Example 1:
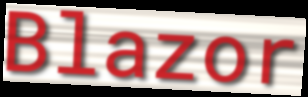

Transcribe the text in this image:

Blazor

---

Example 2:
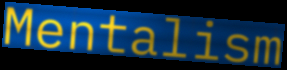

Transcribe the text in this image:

Mentalism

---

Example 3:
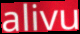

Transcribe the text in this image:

alivu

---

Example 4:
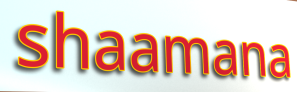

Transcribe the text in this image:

shaamana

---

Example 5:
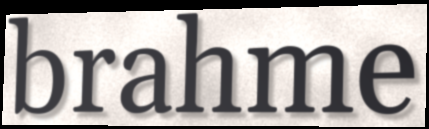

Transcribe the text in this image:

brahme